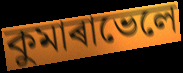
কুমাৰাভেলে